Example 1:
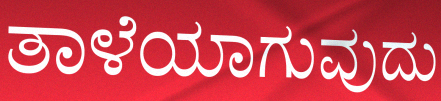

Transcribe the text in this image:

ತಾಳೆಯಾಗುವುದು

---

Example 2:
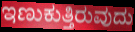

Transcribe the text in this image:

ಇಣುಕುತ್ತಿರುವುದು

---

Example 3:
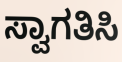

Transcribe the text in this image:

ಸ್ವಾಗತಿಸಿ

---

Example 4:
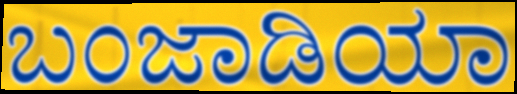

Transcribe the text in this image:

ಬಂಜಾಡಿಯಾ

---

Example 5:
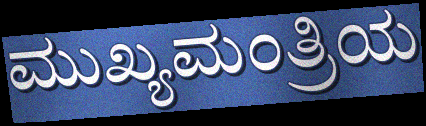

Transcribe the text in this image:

ಮುಖ್ಯಮಂತ್ರಿಯ